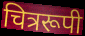
चित्ररूपी